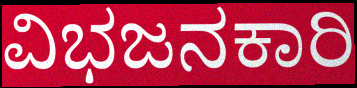
ವಿಭಜನಕಾರಿ